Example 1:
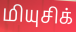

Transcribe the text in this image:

மியுசிக்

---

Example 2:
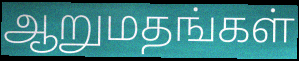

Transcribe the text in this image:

ஆறுமதங்கள்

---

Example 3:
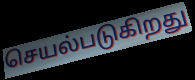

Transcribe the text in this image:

செயல்படுகிறது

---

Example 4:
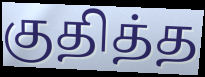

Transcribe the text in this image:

குதித்த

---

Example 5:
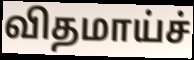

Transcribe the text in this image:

விதமாய்ச்